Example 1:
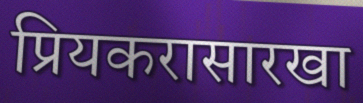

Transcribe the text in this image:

प्रियकरासारखा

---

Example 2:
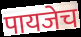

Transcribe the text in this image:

पायजेच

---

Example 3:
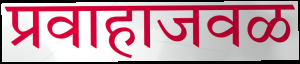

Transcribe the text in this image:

प्रवाहाजवळ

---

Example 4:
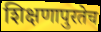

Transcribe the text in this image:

शिक्षणापुरतेच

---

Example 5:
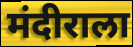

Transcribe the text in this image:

मंदीराला